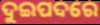
ଦୁଇପଦରେ